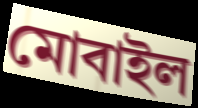
মোবাইল